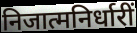
निजात्मनिर्धारीं